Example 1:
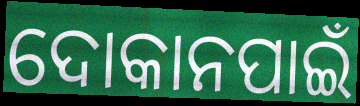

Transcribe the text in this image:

ଦୋକାନପାଇଁ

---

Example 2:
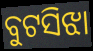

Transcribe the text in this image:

ବୁଟସିଝା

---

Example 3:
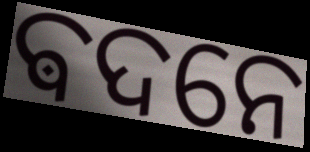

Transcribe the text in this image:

ଵଦନେ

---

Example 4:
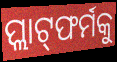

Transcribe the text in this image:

ପ୍ଲାଟ୍‌ଫର୍ମକୁ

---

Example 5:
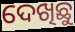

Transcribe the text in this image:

ଦେଖିଛୁ